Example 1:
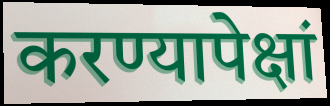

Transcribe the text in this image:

करण्यापेक्षां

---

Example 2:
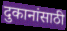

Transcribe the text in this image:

दुकानांसाठी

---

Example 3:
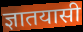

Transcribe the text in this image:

ज्ञातयासी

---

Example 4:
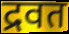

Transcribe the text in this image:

द्रवत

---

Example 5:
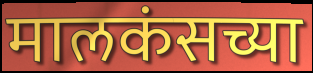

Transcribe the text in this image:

मालकंसच्या